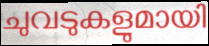
ചുവടുകളുമായി